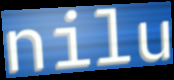
nilu